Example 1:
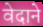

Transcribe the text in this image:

वेदाने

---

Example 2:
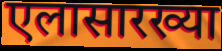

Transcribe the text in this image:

एलासारख्या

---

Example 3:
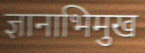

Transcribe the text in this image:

ज्ञानाभिमुख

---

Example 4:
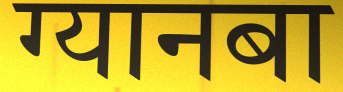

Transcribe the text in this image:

ग्यानबा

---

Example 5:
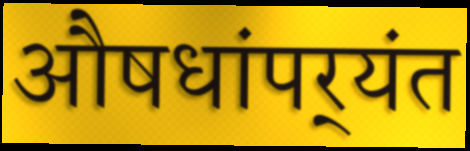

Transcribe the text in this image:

औषधांपर्यंत